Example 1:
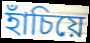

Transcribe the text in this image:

হাঁচিয়ে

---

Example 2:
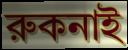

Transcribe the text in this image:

রুকনাই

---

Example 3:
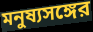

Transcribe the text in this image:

মনুষ্যসঙ্গের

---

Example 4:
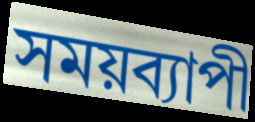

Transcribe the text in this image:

সময়ব্যাপী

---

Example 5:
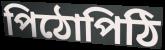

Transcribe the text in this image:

পিঠোপিঠি